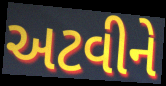
અટવીને